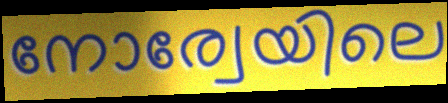
നോര്വേയിലെ